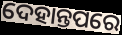
ଦେହାନ୍ତପରେ